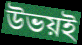
উভয়ই